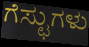
ಗೆಸ್ಟುಗಳು